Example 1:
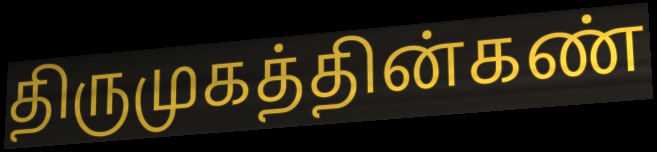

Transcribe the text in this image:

திருமுகத்தின்கண்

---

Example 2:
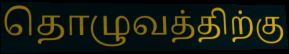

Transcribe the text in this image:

தொழுவத்திற்கு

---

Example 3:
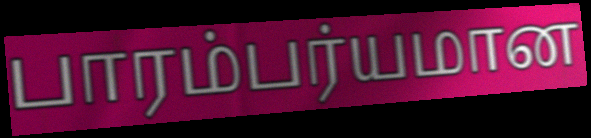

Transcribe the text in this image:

பாரம்பர்யமான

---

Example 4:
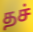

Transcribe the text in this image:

தச்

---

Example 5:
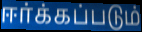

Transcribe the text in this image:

ஈர்க்கப்படும்